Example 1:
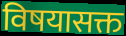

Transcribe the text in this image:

विषयासक्त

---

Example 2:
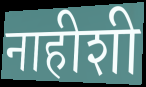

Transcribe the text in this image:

नाहीशी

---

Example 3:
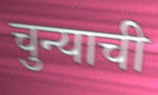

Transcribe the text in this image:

चुन्याची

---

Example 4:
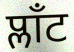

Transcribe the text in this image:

प्लाँट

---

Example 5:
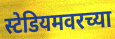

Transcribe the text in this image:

स्टेडियमवरच्या